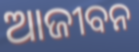
ଆଜୀବନ